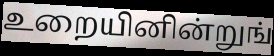
உறையினின்றுங்